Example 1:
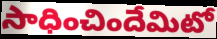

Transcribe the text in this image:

సాధించిందేమిటో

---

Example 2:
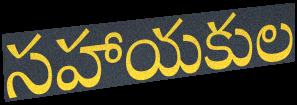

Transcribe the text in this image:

సహాయకుల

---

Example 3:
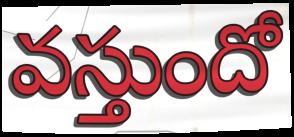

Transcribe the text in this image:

వస్తుందో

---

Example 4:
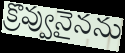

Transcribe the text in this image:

క్రొవ్వునైనను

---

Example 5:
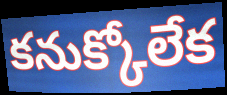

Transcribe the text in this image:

కనుక్కోలేక